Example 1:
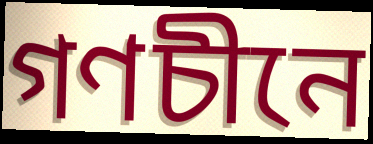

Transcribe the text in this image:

গণচীনে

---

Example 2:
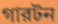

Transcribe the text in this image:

গারটন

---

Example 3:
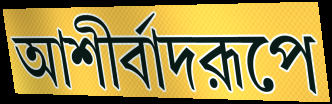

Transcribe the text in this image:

আশীর্বাদরূপে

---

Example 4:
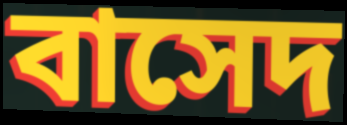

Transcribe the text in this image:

বাসেদ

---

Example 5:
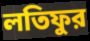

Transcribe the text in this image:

লতিফুর